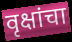
वृक्षांचा